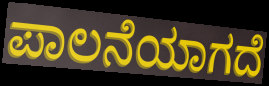
ಪಾಲನೆಯಾಗದೆ